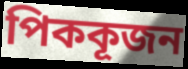
পিককূজন